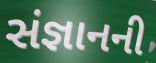
સંજ્ઞાનની